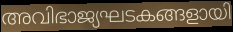
അവിഭാജ്യഘടകങ്ങളായി